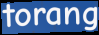
torang